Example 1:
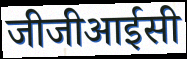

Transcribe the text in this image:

जीजीआईसी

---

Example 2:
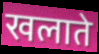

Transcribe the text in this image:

खलाते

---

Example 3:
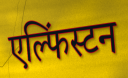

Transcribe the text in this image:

एल्फिंस्टन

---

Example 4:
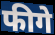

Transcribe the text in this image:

फीगे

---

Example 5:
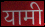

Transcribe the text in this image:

यामी